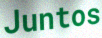
Juntos